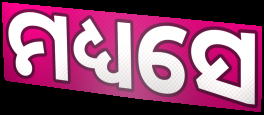
ମଧ୍ୟସେ